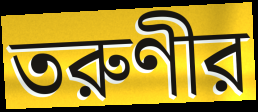
তরুণীর